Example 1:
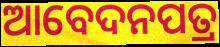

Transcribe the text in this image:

ଆବେଦନପତ୍ର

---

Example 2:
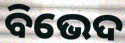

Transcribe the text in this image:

ବିଭେଦ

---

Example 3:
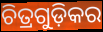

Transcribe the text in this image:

ଚିତ୍ରଗୁଡ଼ିକର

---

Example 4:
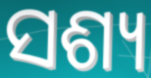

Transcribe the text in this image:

ସଶ୍ୟ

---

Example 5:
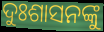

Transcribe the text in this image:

ଦୁଃଶାସନଙ୍କୁ